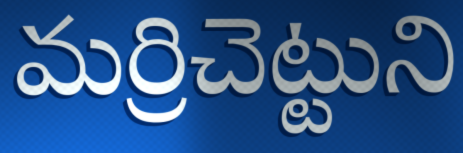
మర్రిచెట్టుని